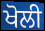
ਖੋਲੀ